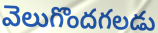
వెలుగొందగలడు